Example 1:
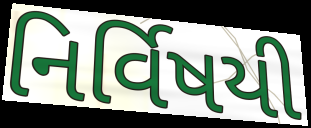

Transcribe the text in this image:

નિર્વિષયી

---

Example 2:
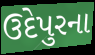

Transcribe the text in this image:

ઉદેપુરના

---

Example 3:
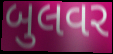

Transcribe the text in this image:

બુલવર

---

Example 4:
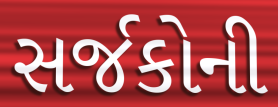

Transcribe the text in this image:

સર્જકોની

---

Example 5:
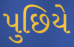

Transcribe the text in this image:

પુછિયે